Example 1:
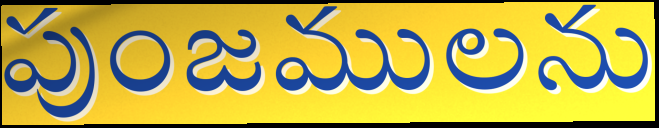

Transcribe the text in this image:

పుంజములను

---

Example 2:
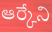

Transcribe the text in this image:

ఆర్కేని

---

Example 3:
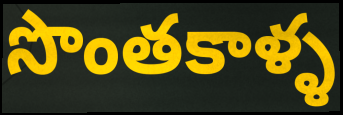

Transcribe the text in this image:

సొంతకాళ్ళ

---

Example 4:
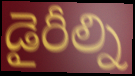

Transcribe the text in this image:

డైరీల్ని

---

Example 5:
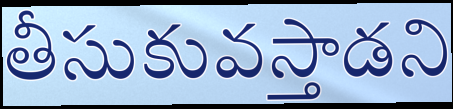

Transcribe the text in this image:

తీసుకువస్తాడని